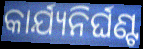
କାର୍ଯ୍ୟନିର୍ଘଣ୍ଟ